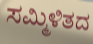
ಸಮ್ಮಿಳಿತದ